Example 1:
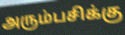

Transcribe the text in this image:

அரும்பசிக்கு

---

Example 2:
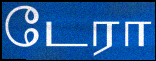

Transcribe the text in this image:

டேரா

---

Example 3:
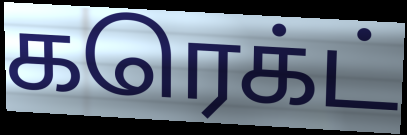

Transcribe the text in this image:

கரெக்ட்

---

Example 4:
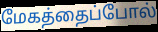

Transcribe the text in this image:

மேகத்தைப்போல்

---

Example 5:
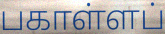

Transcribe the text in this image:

பகாள்ளப்